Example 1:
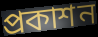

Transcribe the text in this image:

প্রকাশন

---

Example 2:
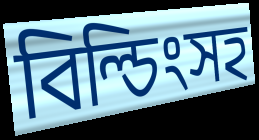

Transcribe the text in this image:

বিল্ডিংসহ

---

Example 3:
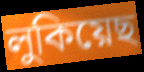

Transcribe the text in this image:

লুকিয়েছ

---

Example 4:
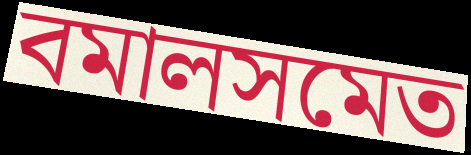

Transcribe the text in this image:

বমালসমেত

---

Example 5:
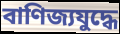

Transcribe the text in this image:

বাণিজ্যযুদ্ধে